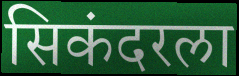
सिकंदरला